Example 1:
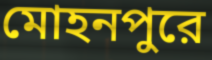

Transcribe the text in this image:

মোহনপুরে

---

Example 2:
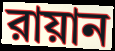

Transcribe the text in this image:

রায়ান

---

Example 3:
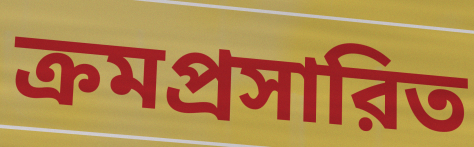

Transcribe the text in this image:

ক্রমপ্রসারিত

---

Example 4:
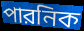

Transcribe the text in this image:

পারনিক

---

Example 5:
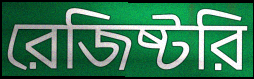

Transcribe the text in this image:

রেজিষ্টরি